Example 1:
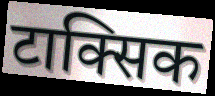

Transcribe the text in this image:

टाक्सिक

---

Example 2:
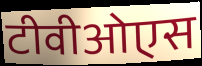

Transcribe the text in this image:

टीवीओएस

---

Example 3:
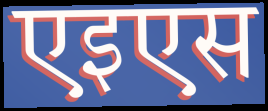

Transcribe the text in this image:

एइएस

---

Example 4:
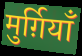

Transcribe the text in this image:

मुर्ग़ियाँ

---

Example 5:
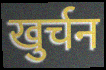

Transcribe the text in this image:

खुर्चन